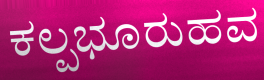
ಕಲ್ಪಭೂರುಹವ